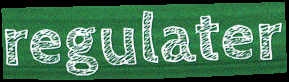
regulater